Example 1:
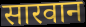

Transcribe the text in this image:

सारवान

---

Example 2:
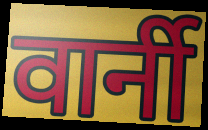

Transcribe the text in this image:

वार्नी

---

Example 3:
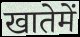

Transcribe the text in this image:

खातेमें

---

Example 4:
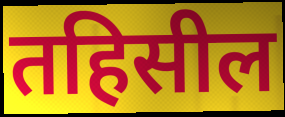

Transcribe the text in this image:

तहिसील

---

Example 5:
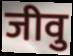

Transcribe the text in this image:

जीवु